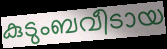
കുടുംബവീടായ